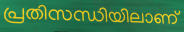
പ്രതിസന്ധിയിലാണ്